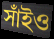
সাঁইও